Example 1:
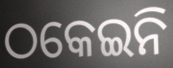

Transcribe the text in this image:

ଠକେଇନି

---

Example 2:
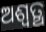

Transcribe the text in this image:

ଅଶ୍ଵତ୍ଥ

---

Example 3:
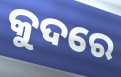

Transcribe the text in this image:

କୁଦରେ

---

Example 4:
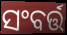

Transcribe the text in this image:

ସଂବର୍ତ୍ତ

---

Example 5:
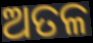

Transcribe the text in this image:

ଅତଳ